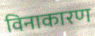
विनाकारण